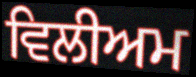
ਵਿਲੀਅਮ